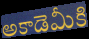
అకాడెమీకి